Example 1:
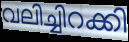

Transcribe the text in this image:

വലിച്ചിറക്കി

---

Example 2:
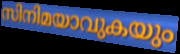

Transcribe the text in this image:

സിനിമയാവുകയും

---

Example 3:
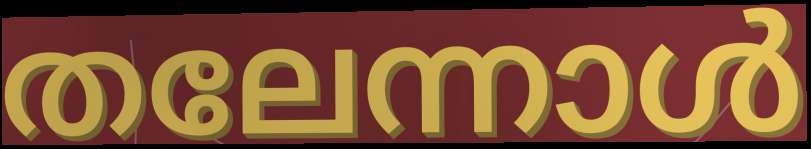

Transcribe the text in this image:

തലേന്നാൾ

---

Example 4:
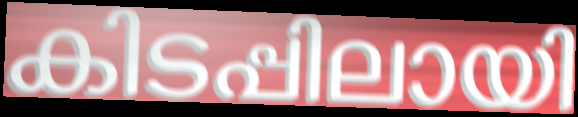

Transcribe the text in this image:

കിടപ്പിലായി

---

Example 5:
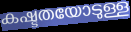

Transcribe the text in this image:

കഷ്ടതയോടുള്ള